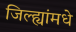
जिल्ह्यांमधे